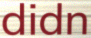
didn